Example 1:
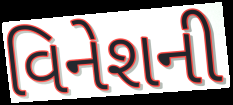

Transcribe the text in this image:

વિનેશની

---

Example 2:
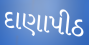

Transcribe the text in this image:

દાણાપીઠ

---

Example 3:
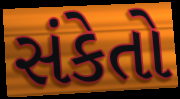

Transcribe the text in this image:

સંકેતો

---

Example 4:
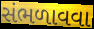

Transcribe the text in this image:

સંભળાવવા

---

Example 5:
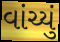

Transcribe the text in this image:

વાંચ્યું